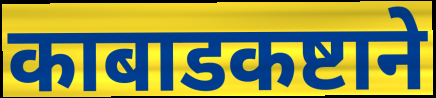
काबाडकष्टाने